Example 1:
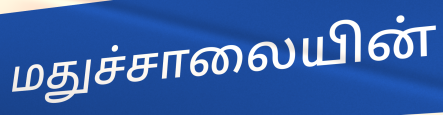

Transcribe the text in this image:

மதுச்சாலையின்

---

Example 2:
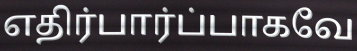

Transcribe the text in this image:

எதிர்பார்ப்பாகவே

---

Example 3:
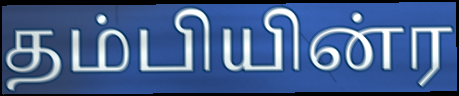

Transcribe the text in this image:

தம்பியின்ர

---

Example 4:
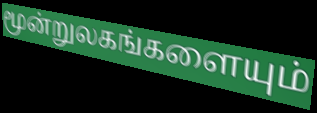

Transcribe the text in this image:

மூன்றுலகங்களையும்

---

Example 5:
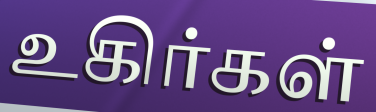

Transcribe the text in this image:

உகிர்கள்